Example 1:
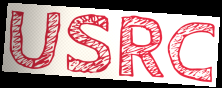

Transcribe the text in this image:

USRC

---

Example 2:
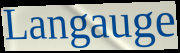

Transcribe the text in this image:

Langauge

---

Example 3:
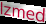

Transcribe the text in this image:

Izmed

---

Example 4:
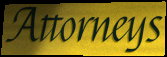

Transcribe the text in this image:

Attorneys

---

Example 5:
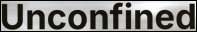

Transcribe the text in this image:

Unconfined